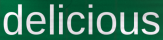
delicious